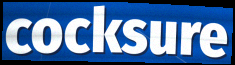
cocksure